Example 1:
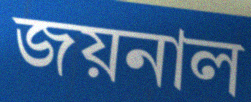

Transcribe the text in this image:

জয়নাল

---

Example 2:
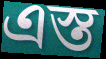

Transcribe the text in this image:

এস্ত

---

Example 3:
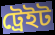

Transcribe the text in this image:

ট্রেইট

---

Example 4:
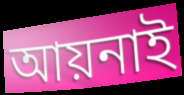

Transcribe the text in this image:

আয়নাই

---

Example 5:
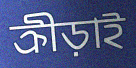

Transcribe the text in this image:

ক্রীড়াই